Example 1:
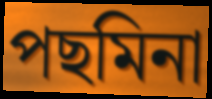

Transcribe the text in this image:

পছমিনা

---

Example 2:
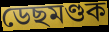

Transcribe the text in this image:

ডেছমণ্ডক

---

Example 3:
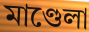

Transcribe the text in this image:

মাণ্ডেলা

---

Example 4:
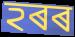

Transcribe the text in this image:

হৰৰ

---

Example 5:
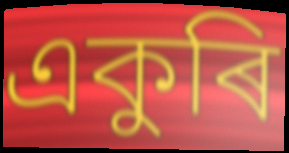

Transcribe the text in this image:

একুৰি